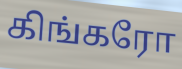
கிங்கரோ